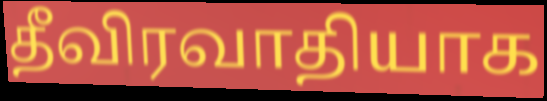
தீவிரவாதியாக